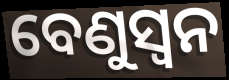
ବେଣୁସ୍ଵନ